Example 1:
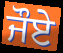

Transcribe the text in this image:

ਜੌਏ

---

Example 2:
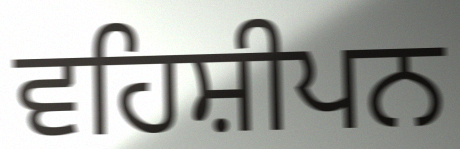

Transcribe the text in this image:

ਵਹਿਸ਼ੀਪਨ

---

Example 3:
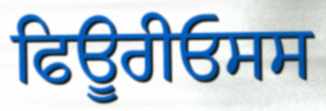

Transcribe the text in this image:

ਫਿਊਰੀਓਸਸ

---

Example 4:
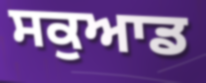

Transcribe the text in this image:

ਸਕੁਆਡ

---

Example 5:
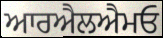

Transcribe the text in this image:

ਆਰਐਲਐਮਓ